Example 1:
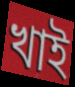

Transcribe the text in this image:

খাই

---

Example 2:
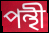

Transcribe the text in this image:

পন্থী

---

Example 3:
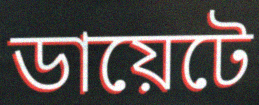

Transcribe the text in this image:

ডায়েটে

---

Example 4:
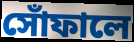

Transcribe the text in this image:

সোঁফালে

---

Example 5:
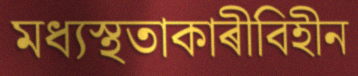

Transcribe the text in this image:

মধ্যস্থতাকাৰীবিহীন